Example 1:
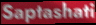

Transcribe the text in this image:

Saptashati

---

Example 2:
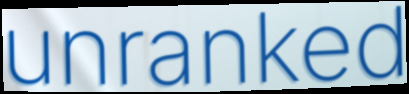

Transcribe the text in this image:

unranked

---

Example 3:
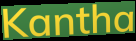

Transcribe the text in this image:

Kantha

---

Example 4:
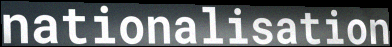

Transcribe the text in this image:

nationalisation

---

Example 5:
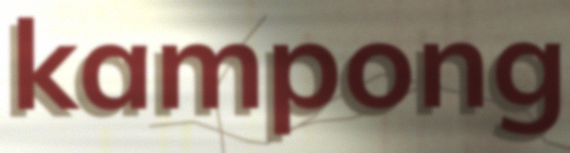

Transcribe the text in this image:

kampong